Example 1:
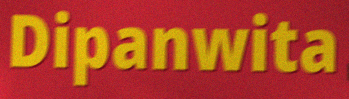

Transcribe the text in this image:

Dipanwita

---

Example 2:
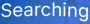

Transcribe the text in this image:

Searching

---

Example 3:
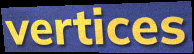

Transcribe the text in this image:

vertices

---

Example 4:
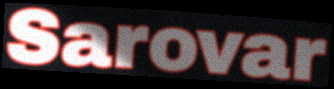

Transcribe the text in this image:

Sarovar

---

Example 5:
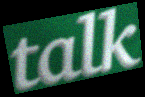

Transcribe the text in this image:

talk